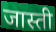
जास्ती